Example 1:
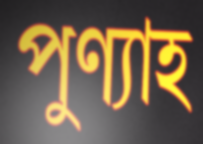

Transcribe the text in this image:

পুণ্যাহ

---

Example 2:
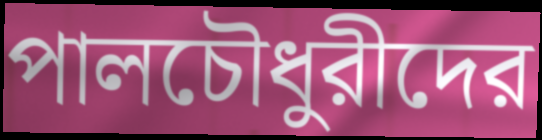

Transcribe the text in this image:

পালচৌধুরীদের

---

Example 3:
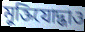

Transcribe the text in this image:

মুক্তিযোদ্ধাও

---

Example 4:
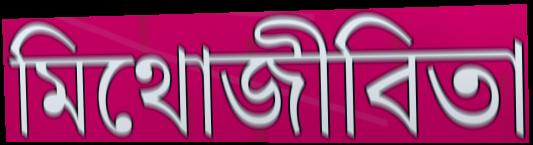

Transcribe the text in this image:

মিথোজীবিতা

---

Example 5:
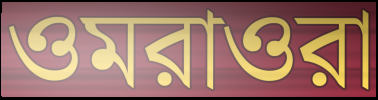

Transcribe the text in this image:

ওমরাওরা